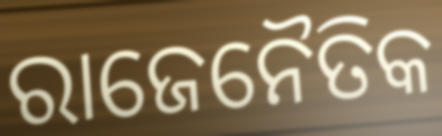
ରାଜେନୈତିକ